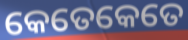
କେତେକେତେ